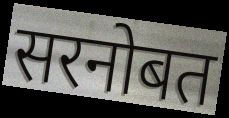
सरनोबत